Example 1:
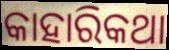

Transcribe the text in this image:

କାହାରିକଥା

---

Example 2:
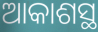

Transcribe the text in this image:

ଆକାଶସ୍ଥ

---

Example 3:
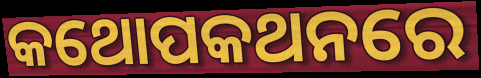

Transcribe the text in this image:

କଥୋପକଥନରେ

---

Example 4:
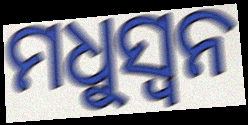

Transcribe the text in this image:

ମଧୁସ୍ୱନ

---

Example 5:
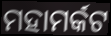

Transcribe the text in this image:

ମହାମର୍କଟ